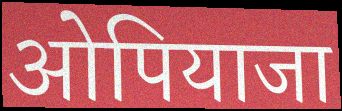
ओपियाजा